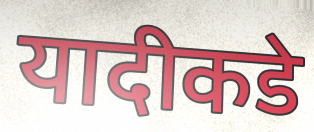
यादीकडे